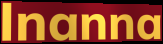
Inanna